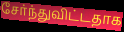
சேர்ந்துவிட்டதாக